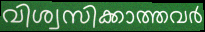
വിശ്വസിക്കാത്തവർ